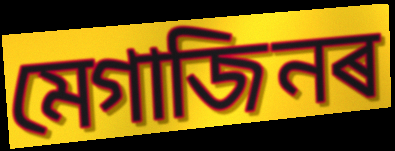
মেগাজিনৰ